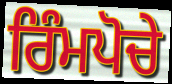
ਰਿੰਮਪੋਚੇ